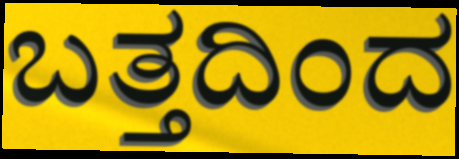
ಬತ್ತದಿಂದ